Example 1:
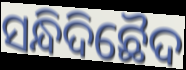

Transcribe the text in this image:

ସନ୍ଧିଦିଛୈଦ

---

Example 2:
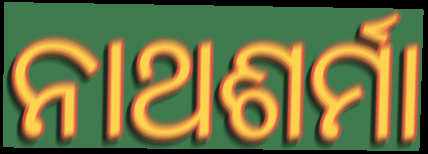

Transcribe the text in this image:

ନାଥଶର୍ମା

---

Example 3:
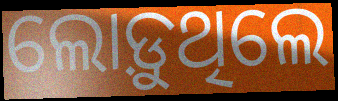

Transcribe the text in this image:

ଲୋଡ଼ୁଥିଲେ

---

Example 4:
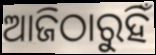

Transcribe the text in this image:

ଆଜିଠାରୁହିଁ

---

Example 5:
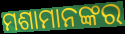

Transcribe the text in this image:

ମଶାମାନଙ୍କର